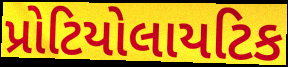
પ્રોટિયોલાયટિક